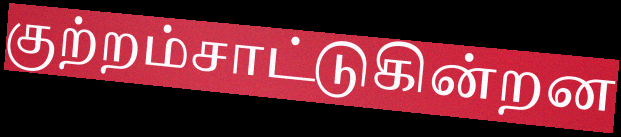
குற்றம்சாட்டுகின்றன